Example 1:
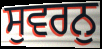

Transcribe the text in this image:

ਸੁਵਰਨੁ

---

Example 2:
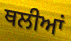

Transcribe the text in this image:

ਥਲੀਆਂ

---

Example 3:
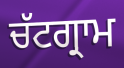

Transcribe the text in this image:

ਚੱਟਗ੍ਰਾਮ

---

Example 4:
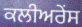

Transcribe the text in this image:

ਕਲੀਅਰੇਂਸ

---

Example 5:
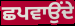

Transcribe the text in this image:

ਛਪਵਾਉਂਦੇ